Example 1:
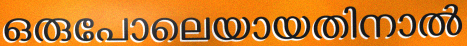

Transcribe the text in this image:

ഒരുപോലെയായതിനാൽ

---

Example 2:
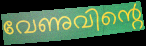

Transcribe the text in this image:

വേണുവിന്റെ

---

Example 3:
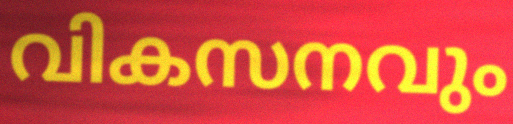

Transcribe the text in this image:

വികസനവും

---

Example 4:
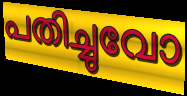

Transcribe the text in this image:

പതിച്ചുവോ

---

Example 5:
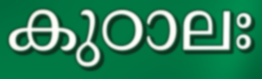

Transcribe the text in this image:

കുഠാലഃ